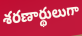
శరణార్థులుగా